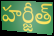
హర్జీత్